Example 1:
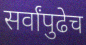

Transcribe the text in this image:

सर्वांपुढेच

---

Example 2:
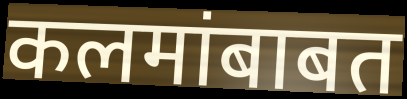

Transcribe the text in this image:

कलमांबाबत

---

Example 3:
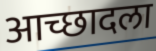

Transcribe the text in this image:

आच्छादला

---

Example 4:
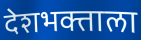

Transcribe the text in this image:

देशभक्ताला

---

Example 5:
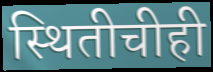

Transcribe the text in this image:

स्थितीचीही